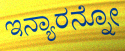
ಇನ್ಯಾರನ್ನೋ